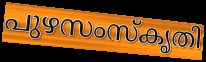
പുഴസംസ്കൃതി